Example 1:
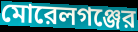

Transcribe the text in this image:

মোরেলগঞ্জের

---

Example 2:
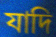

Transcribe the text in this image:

যাদি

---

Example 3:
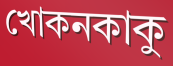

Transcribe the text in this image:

খোকনকাকু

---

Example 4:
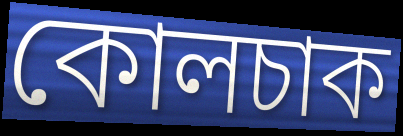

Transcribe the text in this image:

কোলচাক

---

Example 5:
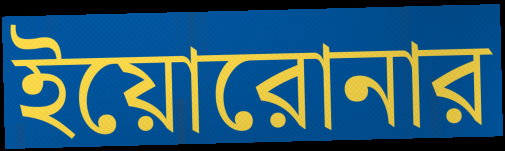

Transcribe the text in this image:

ইয়োরোনার